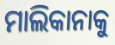
ମାଲିକାନାକୁ